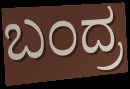
ಬಂದ್ರ